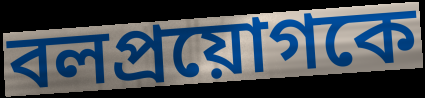
বলপ্রয়োগকে